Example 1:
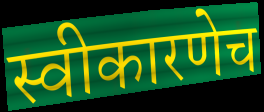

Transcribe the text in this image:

स्वीकारणेच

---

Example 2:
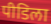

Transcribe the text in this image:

पीडिला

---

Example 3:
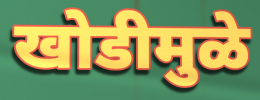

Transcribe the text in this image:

खोडीमुळे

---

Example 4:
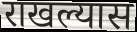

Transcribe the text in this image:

राखल्यास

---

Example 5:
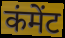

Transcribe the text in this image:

कंमेंट